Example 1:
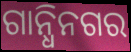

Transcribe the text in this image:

ଗାନ୍ଧିନଗର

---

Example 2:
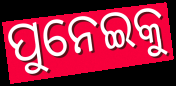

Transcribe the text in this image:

ପୁନେଇକୁ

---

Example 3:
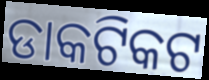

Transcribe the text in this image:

ଡାକଟିକଟ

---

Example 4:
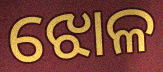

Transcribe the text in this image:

ଝୋଳ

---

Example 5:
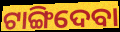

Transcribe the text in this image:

ଟାଙ୍ଗିଦେବା